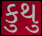
કુથુ